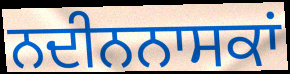
ਨਦੀਨਨਾਸਕਾਂ